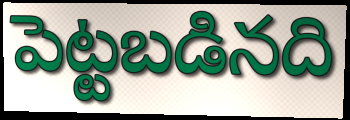
పెట్టబడినది